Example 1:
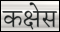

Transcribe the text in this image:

कक्षेस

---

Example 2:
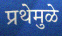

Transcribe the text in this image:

प्रथेमुळे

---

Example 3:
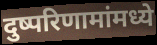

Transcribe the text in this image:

दुष्परिणामांमध्ये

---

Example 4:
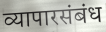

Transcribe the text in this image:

व्यापारसंबंध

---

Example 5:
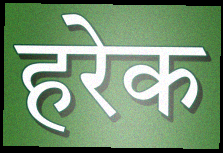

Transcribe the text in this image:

हरेक